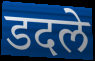
डदले